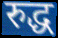
रुद्ध